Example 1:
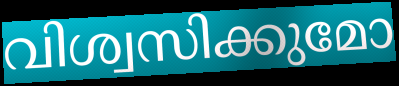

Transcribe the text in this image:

വിശ്വസിക്കുമോ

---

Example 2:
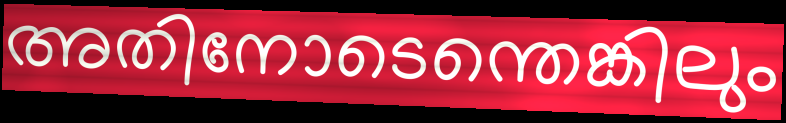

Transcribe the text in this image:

അതിനോടെന്തെങ്കിലും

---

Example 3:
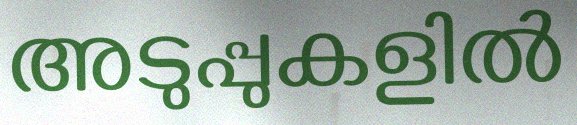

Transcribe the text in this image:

അടുപ്പുകളിൽ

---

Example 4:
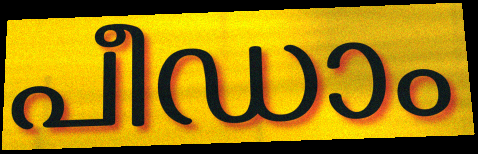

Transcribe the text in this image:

പീഡാം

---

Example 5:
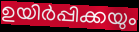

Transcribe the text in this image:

ഉയിർപ്പിക്കയും